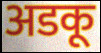
अडकू